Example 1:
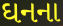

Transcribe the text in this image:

ઘનના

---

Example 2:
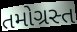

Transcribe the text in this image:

તમોગ્રસ્ત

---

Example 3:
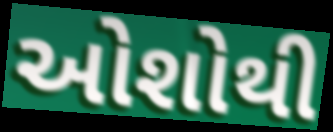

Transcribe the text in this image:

ઓશોથી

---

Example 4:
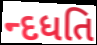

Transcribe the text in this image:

ન્દધતિ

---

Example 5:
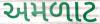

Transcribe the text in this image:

અમળાટ